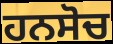
ਹਨਸੋਚ